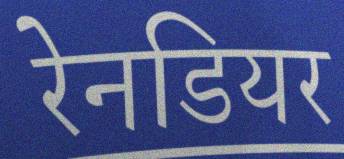
रेनडियर